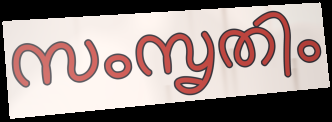
സംസൃതിം